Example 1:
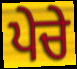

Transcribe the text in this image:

ਪੇਚੇ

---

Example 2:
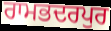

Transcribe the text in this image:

ਰਾਮਭਦਰਪੁਰ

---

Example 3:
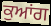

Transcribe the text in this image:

ਕੁਆਂਗ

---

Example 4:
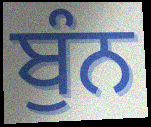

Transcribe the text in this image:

ਬੁੰਨ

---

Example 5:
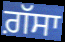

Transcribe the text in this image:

ਗ਼ੱਸਾ